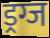
ड्रग्ज